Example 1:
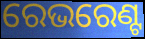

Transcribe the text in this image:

ରେଭରେଣ୍ଟ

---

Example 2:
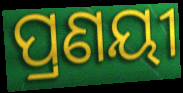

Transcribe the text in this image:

ପ୍ରଣୟୀ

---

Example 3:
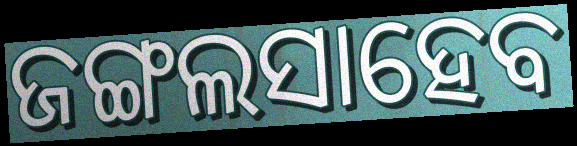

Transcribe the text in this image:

ଜଙ୍ଗଲସାହେବ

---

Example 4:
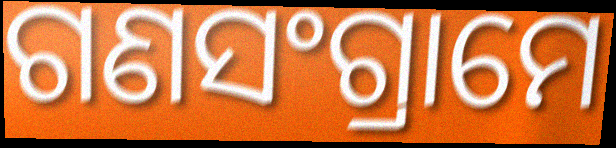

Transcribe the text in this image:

ଗଣସଂଗ୍ରାମେ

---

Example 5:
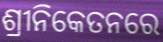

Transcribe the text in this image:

ଶ୍ରୀନିକେତନରେ